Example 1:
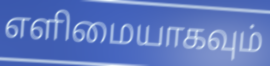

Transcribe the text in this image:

எளிமையாகவும்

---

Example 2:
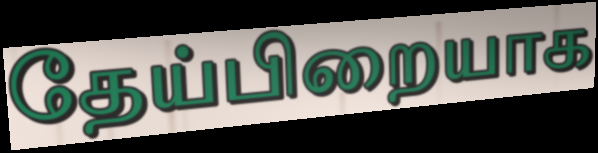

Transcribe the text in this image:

தேய்பிறையாக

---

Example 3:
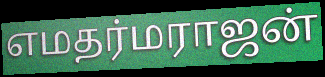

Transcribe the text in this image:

எமதர்மராஜன்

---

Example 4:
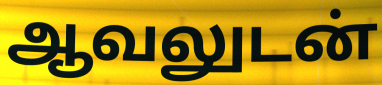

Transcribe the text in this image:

ஆவலுடன்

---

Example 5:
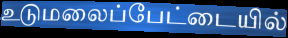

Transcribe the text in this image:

உடுமலைப்பேட்டையில்